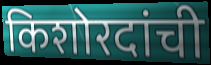
किशोरदांची